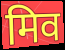
मिव